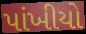
પાંખીયો